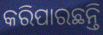
କରିପାରଛନ୍ତି